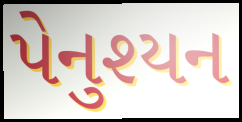
પેનુશ્યન